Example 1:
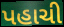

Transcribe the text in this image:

પહાચી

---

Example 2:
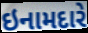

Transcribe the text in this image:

ઇનામદારે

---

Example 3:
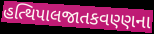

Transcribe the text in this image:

હત્થિપાલજાતકવણ્ણના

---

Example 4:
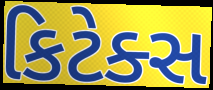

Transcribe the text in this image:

કિટેક્સ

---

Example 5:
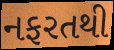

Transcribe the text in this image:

નફરતથી